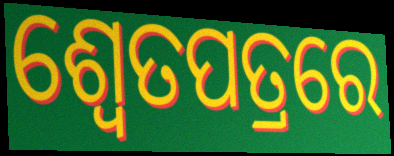
ଶ୍ୱେତପତ୍ରରେ